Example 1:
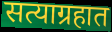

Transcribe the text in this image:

सत्याग्रहात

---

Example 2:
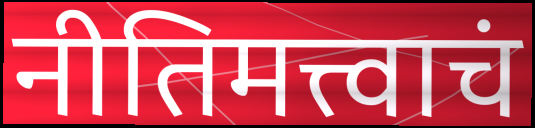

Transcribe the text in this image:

नीतिमत्त्वाचं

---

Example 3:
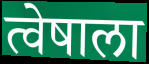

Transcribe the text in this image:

त्वेषाला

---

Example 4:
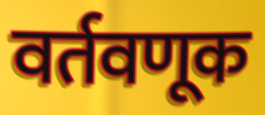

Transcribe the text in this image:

वर्तवणूक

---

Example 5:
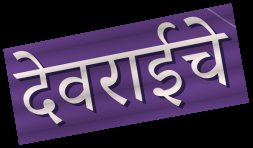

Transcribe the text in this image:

देवराईचे